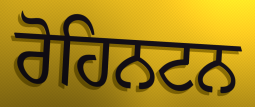
ਰੋਹਿਨਟਨ